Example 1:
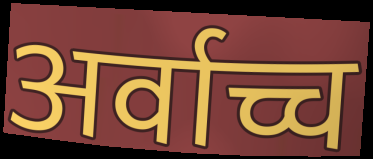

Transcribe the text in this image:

अर्वाच्च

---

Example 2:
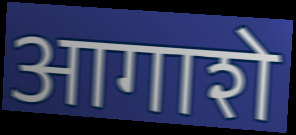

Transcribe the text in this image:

आगाशे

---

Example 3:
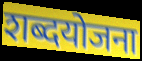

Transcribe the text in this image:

शब्दयोजना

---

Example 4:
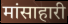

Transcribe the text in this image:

मांसाहारी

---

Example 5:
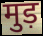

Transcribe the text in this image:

मुड़